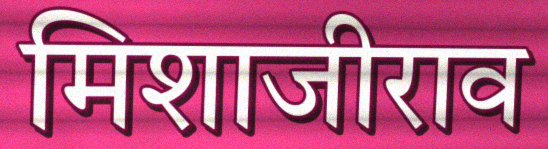
मिशाजीराव